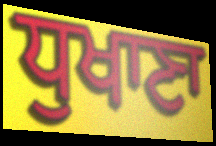
ਧੁਖਾਣਾ